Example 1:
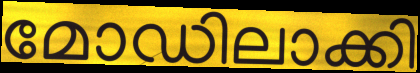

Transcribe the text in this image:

മോഡിലാക്കി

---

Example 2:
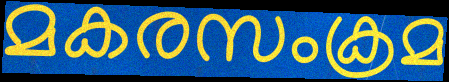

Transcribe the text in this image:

മകരസംക്രമ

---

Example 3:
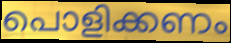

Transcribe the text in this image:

പൊളിക്കണം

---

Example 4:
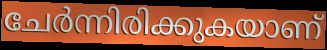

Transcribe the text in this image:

ചേർന്നിരിക്കുകയാണ്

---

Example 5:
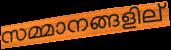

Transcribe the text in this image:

സമ്മാനങ്ങളില്